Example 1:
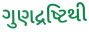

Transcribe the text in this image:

ગુણદ્રષ્ટિથી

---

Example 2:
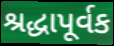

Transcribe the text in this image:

શ્રદ્ધાપૂર્વક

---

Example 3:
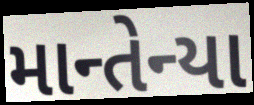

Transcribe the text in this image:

માન્તેન્યા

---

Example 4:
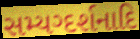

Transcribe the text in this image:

સમ્યગ્દર્શનાદિ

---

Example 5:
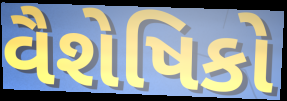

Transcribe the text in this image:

વૈશેષિકો